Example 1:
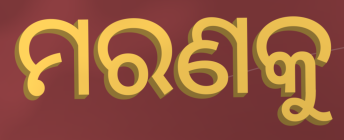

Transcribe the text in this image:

ମରଣକୁ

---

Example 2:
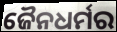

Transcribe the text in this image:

ଜୈନଧର୍ମର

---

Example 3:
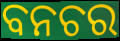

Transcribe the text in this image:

ବନଚର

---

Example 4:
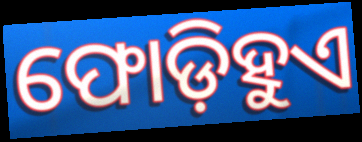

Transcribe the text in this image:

ଫୋଡ଼ିହୁଏ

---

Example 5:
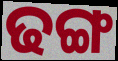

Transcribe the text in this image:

ଢଙ୍ଗ